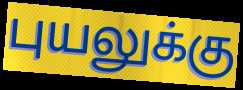
புயலுக்கு